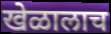
खेळालाच